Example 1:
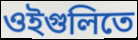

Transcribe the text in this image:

ওইগুলিতে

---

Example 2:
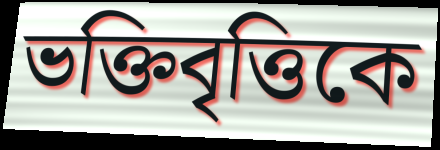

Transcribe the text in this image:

ভক্তিবৃত্তিকে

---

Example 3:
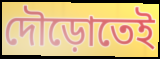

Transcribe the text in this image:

দৌড়োতেই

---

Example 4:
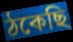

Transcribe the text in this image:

ঠকেছি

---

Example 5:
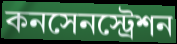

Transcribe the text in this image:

কনসেনস্ট্রেশন